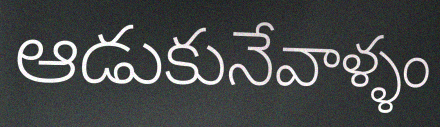
ఆడుకునేవాళ్ళం